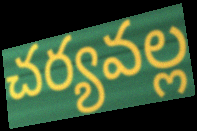
చర్యవల్ల